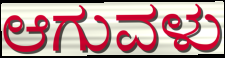
ಆಗುವಳು